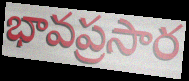
భావప్రసార